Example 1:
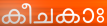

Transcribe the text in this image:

കീചകാഃ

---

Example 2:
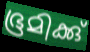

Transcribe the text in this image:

ഭൂമിക്കു്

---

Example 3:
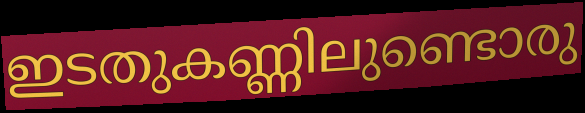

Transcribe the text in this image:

ഇടതുകണ്ണിലുണ്ടൊരു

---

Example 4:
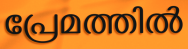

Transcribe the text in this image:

പ്രേമത്തിൽ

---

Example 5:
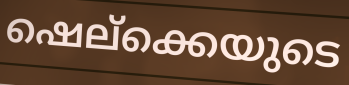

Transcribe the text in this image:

ഷെല്ക്കെയുടെ